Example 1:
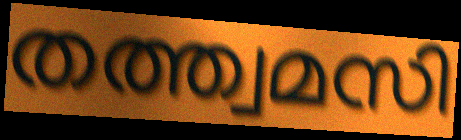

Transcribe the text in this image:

തത്ത്വമസി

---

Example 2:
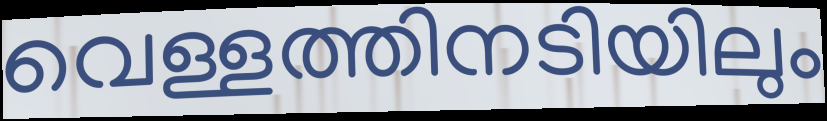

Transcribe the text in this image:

വെള്ളത്തിനടിയിലും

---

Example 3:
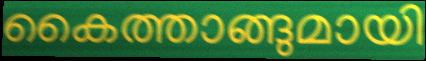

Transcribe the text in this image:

കൈത്താങ്ങുമായി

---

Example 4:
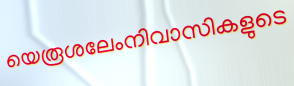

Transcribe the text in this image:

യെരൂശലേംനിവാസികളുടെ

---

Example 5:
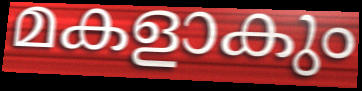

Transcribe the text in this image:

മകളാകും